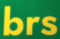
brs